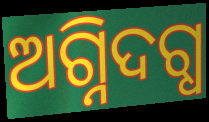
ଅଗ୍ନିଦଗ୍ଧ